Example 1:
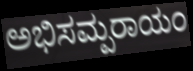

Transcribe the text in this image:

ಅಭಿಸಮ್ಪರಾಯಂ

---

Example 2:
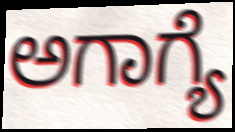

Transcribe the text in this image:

ಅಗಾಗ್ಯೆ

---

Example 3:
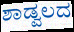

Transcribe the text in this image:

ಶಾಡ್ವಲದ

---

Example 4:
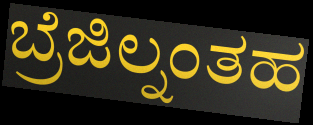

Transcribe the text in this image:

ಬ್ರೆಜಿಲ್ನಂತಹ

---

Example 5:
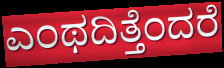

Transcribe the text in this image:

ಎಂಥದಿತ್ತೆಂದರೆ